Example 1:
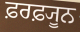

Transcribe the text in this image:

ਫ਼ਰਫ਼੍ਯੂਨ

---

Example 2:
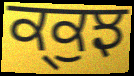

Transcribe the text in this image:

ਕ੍ਕੁਝ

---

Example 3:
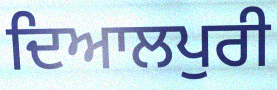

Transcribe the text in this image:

ਦਿਆਲਪੁਰੀ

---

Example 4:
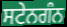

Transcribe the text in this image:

ਸਟੇਨਗੰਨ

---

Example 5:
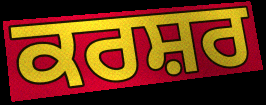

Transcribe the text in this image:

ਕਰਸ਼ਰ